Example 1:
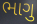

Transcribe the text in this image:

ભાગુ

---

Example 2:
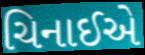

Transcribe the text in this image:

ચિનાઈએ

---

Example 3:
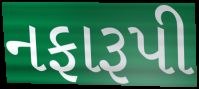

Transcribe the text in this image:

નફારૂપી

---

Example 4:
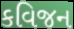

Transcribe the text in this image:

કવિજન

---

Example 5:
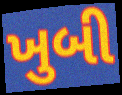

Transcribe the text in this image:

ખુબી